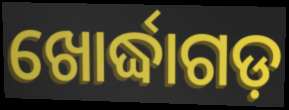
ଖୋର୍ଦ୍ଧାଗଡ଼